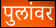
पुलांवर